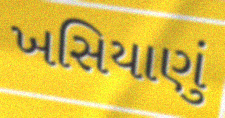
ખસિયાણું